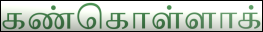
கண்கொள்ளாக்